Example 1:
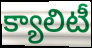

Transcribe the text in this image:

క్యాలిటీ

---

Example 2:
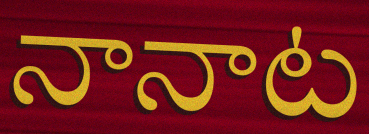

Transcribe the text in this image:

నానాట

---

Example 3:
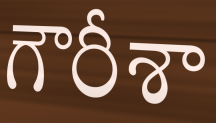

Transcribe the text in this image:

గౌరీశా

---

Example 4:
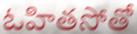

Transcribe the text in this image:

ఓహితసోతో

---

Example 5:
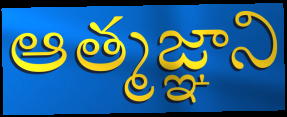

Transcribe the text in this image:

ఆత్మజ్ఞాని